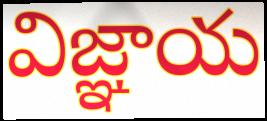
విజ్ఞాయ